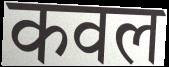
कवल